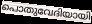
പൊതുവേദിയായി